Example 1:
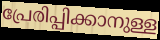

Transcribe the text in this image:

പ്രേരിപ്പിക്കാനുള്ള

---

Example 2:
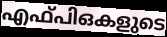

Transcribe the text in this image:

എഫ്പിഒകളുടെ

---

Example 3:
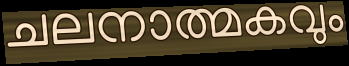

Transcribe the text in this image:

ചലനാത്മകവും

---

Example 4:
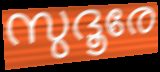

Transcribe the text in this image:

സുദൂരേ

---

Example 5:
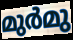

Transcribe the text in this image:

മുർമു